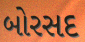
બોરસદ